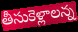
తీసుకెళ్లాలన్న